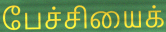
பேச்சியைக்